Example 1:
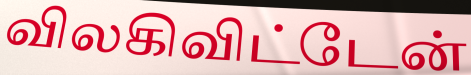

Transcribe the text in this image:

விலகிவிட்டேன்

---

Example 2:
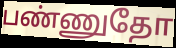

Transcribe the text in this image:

பண்ணுதோ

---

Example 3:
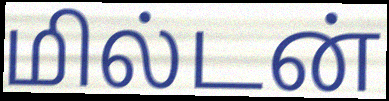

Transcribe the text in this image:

மில்டன்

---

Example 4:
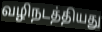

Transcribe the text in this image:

வழிநடத்தியது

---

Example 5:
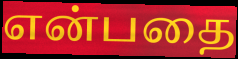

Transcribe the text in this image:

என்பதை